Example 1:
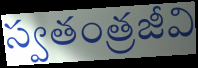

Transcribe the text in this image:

స్వతంత్రజీవి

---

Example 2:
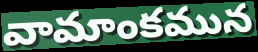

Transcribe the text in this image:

వామాంకమున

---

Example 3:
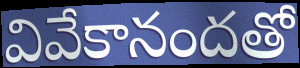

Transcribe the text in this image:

వివేకానందతో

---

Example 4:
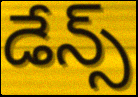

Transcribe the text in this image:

డేన్స్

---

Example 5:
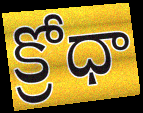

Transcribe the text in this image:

క్రోధా